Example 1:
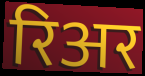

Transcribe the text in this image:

रिअर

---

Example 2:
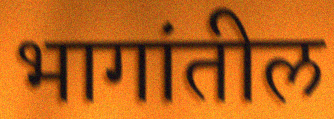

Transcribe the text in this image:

भागांतील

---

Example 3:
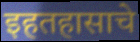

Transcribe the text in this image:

इहतहासाचे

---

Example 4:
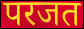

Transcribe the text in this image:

परजत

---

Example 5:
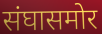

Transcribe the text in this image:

संघासमोर